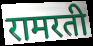
रामरती